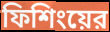
ফিশিংয়ের